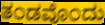
ತಂಡವೊಂದು